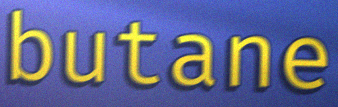
butane